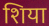
शिया